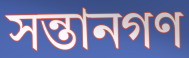
সন্তানগণ